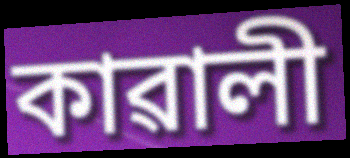
কাৱালী